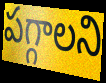
పగ్గాలని